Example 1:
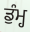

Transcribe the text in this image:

ਡੁੰਮ੍ਹ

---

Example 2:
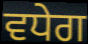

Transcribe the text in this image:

ਵਧੇਗ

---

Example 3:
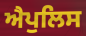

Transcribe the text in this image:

ਐਪੁਲਿਸ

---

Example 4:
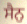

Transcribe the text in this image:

ਸੈਨੁ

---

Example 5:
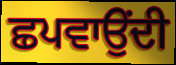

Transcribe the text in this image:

ਛਪਵਾਉਂਦੀ